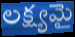
లక్ష్యమై